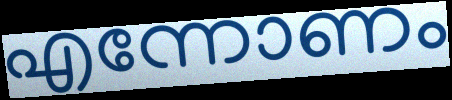
എന്നോണം